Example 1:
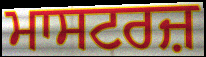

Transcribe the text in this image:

ਮਾਸਟਰਜ਼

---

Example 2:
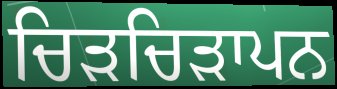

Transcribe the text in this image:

ਚਿੜਚਿੜਾਪਨ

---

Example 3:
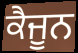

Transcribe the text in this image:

ਕੈਜੂਨ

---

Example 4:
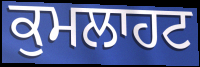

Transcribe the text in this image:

ਕੁਮਲਾਹਟ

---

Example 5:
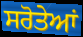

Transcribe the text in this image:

ਸਰੋਤੇਆਂ